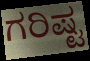
ಗರಿಷ್ಟ